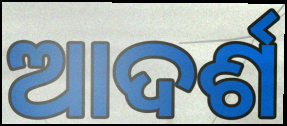
ଆଦର୍ଶ